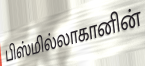
பிஸ்மில்லாகானின்